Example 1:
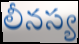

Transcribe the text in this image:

లీనస్య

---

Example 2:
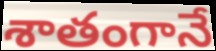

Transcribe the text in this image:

శాతంగానే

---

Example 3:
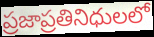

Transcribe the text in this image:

ప్రజాప్రతినిధులలో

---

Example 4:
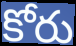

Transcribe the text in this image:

కోరు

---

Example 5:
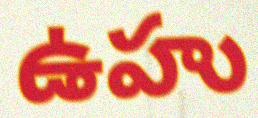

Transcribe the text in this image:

ఉహు